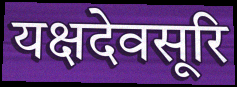
यक्षदेवसूरि